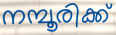
നമ്പൂരിക്ക്